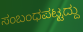
ಸಂಬಂಧಪಟ್ಟದ್ದು